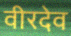
वीरदेव